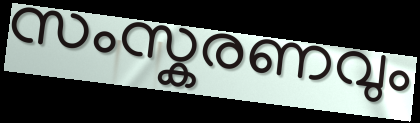
സംസ്കരണവും